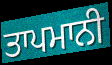
ਤਾਪਮਾਨੀ